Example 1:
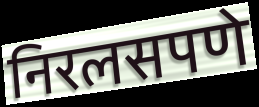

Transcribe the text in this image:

निरलसपणे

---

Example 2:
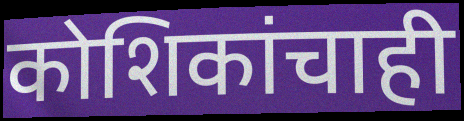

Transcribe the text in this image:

कोशिकांचाही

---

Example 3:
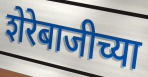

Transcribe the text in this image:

शेरेबाजीच्या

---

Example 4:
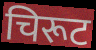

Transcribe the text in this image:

चिरूट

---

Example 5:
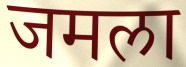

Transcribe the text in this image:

जमला